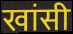
खांसी